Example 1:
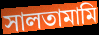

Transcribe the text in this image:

সালতামামি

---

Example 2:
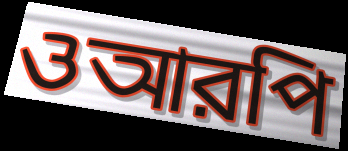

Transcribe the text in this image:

ওআরপি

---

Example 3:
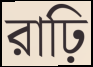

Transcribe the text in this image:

রাঢ়ি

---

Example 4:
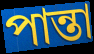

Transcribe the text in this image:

পান্তা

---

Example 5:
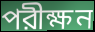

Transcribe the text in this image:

পরীক্ষন